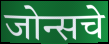
जोन्सचे